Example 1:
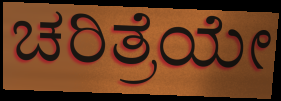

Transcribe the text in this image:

ಚರಿತ್ರೆಯೇ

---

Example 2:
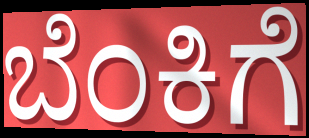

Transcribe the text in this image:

ಬೆಂಕಿಗೆ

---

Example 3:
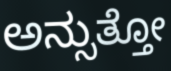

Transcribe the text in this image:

ಅನ್ಸುತ್ತೋ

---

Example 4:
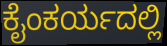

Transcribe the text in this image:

ಕೈಂಕರ್ಯದಲ್ಲಿ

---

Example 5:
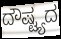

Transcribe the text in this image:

ದೌಷ್ಟ್ಯದ